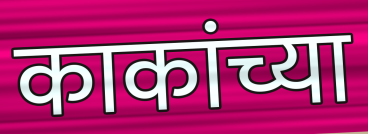
काकांच्या